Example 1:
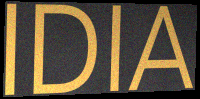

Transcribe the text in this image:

IDIA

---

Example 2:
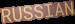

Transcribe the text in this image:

RUSSIAN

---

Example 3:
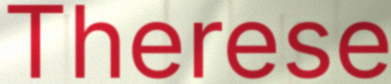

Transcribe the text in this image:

Therese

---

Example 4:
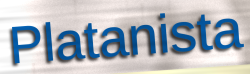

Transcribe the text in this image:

Platanista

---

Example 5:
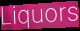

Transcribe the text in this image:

Liquors